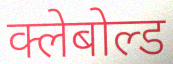
क्लेबोल्ड